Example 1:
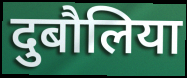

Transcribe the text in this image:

दुबौलिया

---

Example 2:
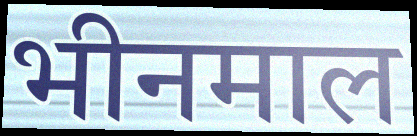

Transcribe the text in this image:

भीनमाल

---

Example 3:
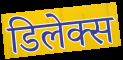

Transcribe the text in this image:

डिलेक्स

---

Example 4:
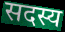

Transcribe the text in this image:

सदस्य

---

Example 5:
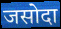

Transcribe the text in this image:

जसोदा